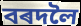
বৰদলৈ